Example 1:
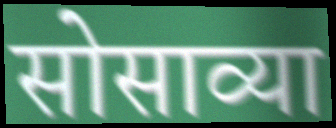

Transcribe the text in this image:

सोसाव्या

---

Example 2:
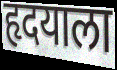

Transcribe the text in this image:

हृदयाला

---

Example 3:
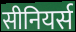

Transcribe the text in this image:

सीनियर्स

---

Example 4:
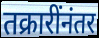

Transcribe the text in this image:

तक्रारींनंतर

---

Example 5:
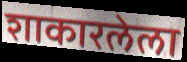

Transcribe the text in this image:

शाकारलेला